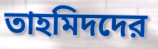
তাহমিদদের